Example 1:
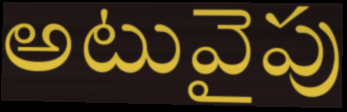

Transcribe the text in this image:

అటువైపు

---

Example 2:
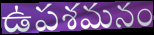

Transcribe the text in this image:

ఉపశమనం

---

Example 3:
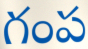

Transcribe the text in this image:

గంప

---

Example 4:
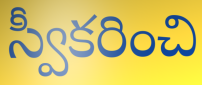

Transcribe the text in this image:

స్వీకరించి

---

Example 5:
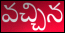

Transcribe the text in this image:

వచ్చిన